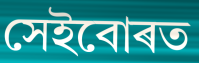
সেইবোৰত